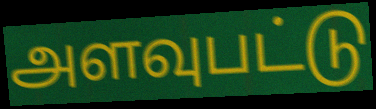
அளவுபட்டு